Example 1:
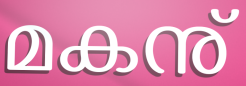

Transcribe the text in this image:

മകനു്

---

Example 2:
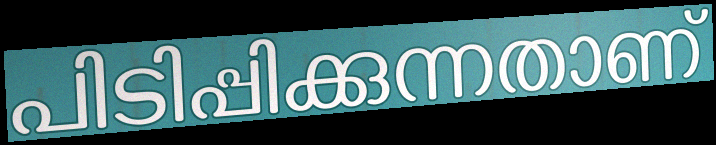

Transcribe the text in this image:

പിടിപ്പിക്കുന്നതാണ്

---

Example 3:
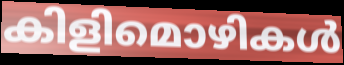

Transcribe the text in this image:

കിളിമൊഴികൾ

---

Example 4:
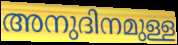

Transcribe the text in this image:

അനുദിനമുള്ള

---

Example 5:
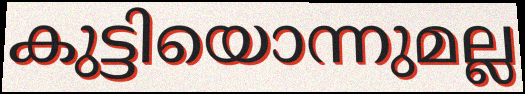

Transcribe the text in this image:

കുട്ടിയൊന്നുമല്ല